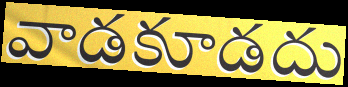
వాడకూడదు